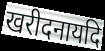
खरीदनायदि